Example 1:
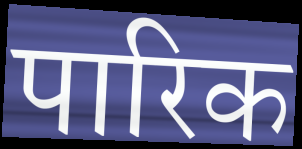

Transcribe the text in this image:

पारिक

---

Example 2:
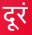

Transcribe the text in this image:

दूरं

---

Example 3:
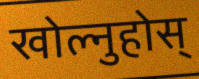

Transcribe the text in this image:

खोल्नुहोस्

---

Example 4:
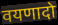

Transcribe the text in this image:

वयणादो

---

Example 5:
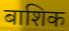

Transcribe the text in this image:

बाशिक